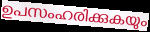
ഉപസംഹരിക്കുകയും